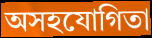
অসহযোগিতা